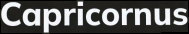
Capricornus